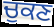
ਚੁਕਣ